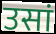
उसां